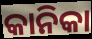
କାନିକା